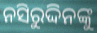
ନସିରୁଦ୍ଦିନଙ୍କୁ